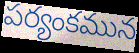
పర్యంకమున